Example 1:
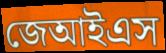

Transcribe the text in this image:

জেআইএস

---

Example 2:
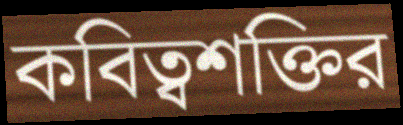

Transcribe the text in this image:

কবিত্বশক্তির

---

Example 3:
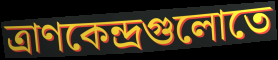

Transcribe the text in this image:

ত্রাণকেন্দ্রগুলোতে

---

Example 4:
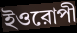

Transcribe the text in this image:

ইওরোপী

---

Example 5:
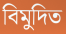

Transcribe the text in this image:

বিমুদিত